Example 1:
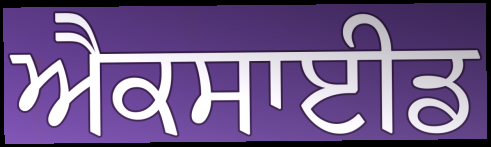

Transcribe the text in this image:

ਐਕਸਾਈਡ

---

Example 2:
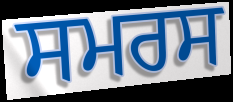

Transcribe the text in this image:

ਸਮਰਸ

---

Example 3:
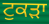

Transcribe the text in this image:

ਟੁਕੜਾ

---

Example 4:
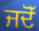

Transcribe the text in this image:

ਜਦੋੱ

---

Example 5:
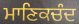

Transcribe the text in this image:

ਮਾਣਿਕਚੰਦ